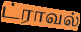
ட்ராவல்